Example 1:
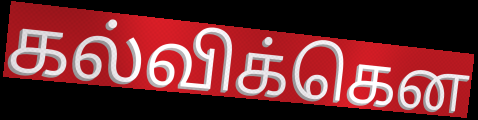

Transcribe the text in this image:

கல்விக்கென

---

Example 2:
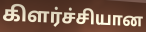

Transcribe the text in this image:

கிளர்ச்சியான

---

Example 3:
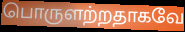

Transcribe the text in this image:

பொருளற்றதாகவே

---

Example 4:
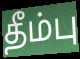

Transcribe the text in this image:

தீம்பு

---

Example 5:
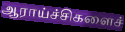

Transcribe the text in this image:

ஆராய்ச்சிகளைச்